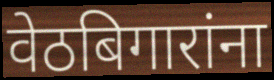
वेठबिगारांना